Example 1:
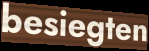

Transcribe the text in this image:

besiegten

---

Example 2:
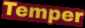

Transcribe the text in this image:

Temper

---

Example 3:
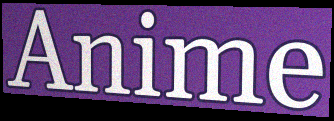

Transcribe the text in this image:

Anime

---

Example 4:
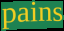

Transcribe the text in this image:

pains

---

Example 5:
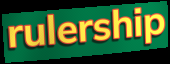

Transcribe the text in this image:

rulership